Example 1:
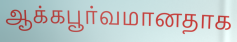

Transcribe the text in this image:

ஆக்கபூர்வமானதாக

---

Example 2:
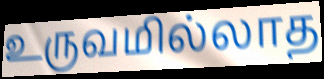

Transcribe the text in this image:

உருவமில்லாத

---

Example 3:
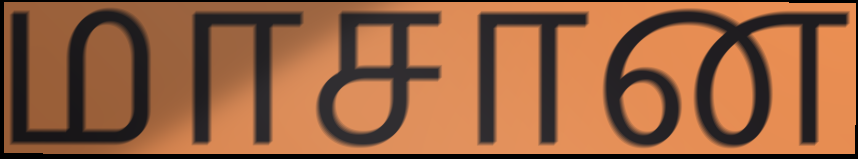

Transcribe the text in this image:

மாசான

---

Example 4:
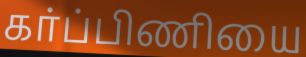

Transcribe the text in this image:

கர்ப்பிணியை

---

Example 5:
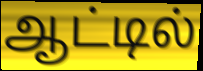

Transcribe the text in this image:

ஆட்டில்